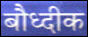
बौध्दीक